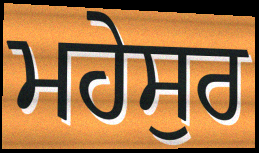
ਮਹੇਸੁਰ